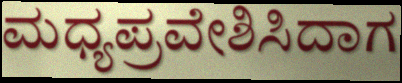
ಮಧ್ಯಪ್ರವೇಶಿಸಿದಾಗ